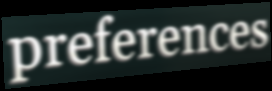
preferences